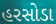
હરસોડા